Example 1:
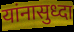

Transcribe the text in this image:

यांनासुध्दा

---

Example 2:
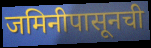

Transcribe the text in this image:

जमिनीपासूनची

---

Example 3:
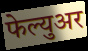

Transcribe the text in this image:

फेल्युअर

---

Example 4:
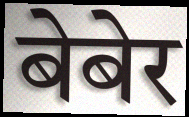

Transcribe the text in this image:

बेबेर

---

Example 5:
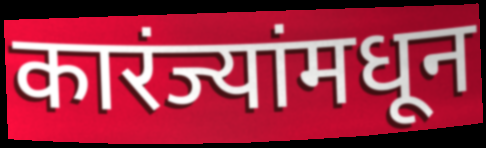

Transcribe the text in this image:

कारंज्यांमधून